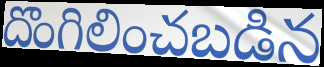
దొంగిలించబడిన